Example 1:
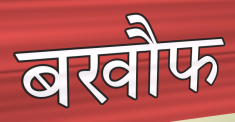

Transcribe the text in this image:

बखौफ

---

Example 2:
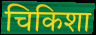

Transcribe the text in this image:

चिकिशा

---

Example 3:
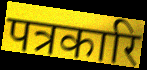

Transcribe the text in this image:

पत्रकारि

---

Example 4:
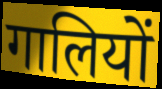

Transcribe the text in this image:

गालियों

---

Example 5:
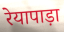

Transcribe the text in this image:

रेयापाड़ा